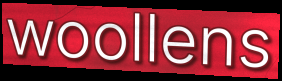
woollens